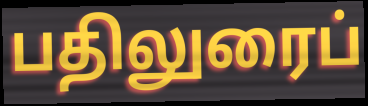
பதிலுரைப்